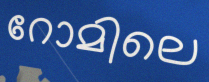
റോമിലെ